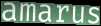
amarus